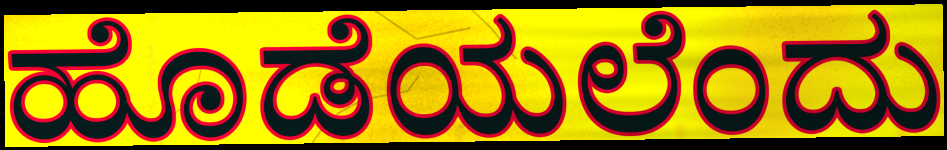
ಹೊಡೆಯಲೆಂದು